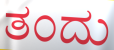
ತಂದು